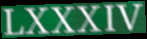
LXXXIV